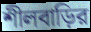
শীলবাড়ির